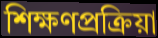
শিক্ষণপ্রক্রিয়া